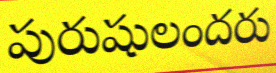
పురుషులందరు